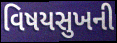
વિષયસુખની